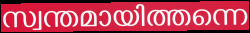
സ്വന്തമായിത്തന്നെ